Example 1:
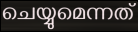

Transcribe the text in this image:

ചെയ്യുമെന്നത്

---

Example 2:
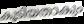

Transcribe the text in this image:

കൂടിയതാകും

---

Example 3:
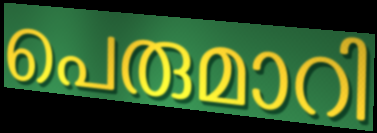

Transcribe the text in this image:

പെരുമാറി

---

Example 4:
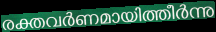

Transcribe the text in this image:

രക്തവർണമായിത്തീർന്നു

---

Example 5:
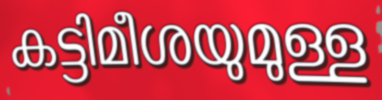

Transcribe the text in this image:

കട്ടിമീശയുമുള്ള